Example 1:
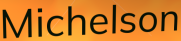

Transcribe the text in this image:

Michelson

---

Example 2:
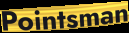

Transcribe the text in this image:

Pointsman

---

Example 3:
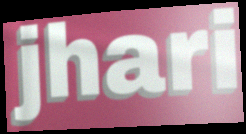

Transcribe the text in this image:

jhari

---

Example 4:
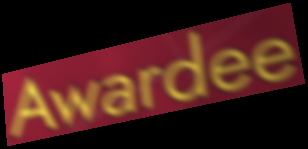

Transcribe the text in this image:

Awardee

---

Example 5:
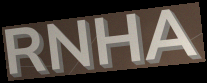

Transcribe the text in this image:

RNHA